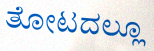
ತೋಟದಲ್ಲೂ